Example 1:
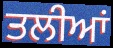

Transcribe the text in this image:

ਤਲੀਆਂ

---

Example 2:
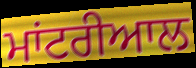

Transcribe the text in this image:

ਮਾਂਟਰੀਆਲ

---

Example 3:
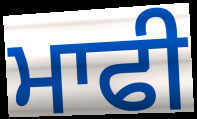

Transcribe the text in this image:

ਮਾਫੀ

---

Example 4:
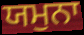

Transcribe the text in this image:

ਯਮੁਨਾ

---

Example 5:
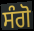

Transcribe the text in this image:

ਸੰਗੋ